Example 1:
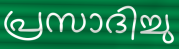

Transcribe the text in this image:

പ്രസാദിച്ചു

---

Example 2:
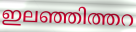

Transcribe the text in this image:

ഇലഞ്ഞിത്തറ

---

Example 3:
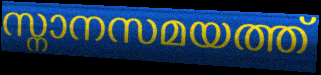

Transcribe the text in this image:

സ്നാനസമയത്ത്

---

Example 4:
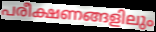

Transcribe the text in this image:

പരീക്ഷണങ്ങളിലും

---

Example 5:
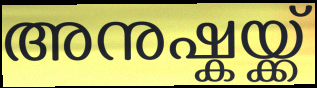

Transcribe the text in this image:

അനുഷ്കയ്ക്ക്